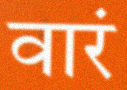
वारं